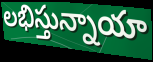
లభిస్తున్నాయా